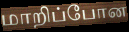
மாறிப்போன